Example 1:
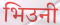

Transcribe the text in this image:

भिउनी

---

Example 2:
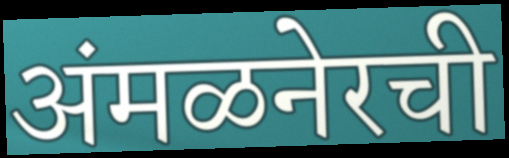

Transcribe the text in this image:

अंमळनेरची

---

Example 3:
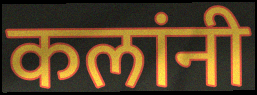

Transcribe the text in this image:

कलांनी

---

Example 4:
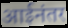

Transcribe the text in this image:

आईनंतर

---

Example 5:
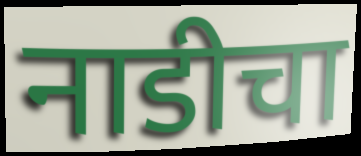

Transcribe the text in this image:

नाडीचा